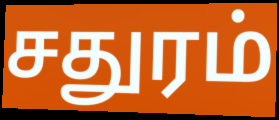
சதுரம்